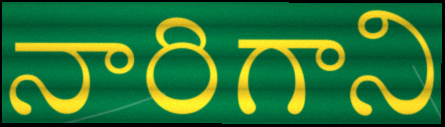
నారిగాని